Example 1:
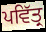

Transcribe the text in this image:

ਪਵਿੱਤ੍ਰ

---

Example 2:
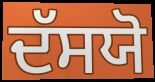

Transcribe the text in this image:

ਦੱਸਯੋ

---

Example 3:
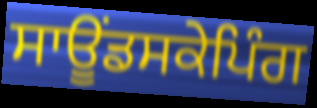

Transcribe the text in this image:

ਸਾਊਂਡਸਕੇਪਿੰਗ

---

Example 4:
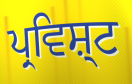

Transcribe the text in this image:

ਪ੍ਰਵਿਸ਼੍ਟ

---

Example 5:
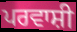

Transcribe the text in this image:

ਪਰਵਾਸ਼ੀ